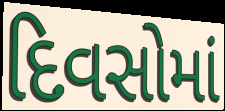
દિવસોમાં